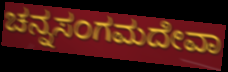
ಚನ್ನಸಂಗಮದೇವಾ